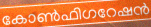
കോൺഫിഗറേഷൻ